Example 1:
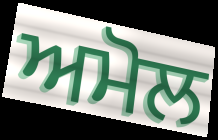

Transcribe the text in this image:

ਅਮੋਲ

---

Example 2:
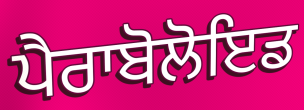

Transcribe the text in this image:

ਪੈਰਾਬੋਲੋਇਡ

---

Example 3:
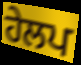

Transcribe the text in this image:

ਹੇਲਪ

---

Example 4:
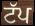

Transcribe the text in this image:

ਟੱਪ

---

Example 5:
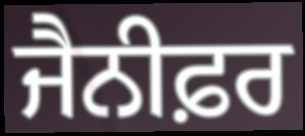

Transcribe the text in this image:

ਜੈਨੀਫ਼ਰ